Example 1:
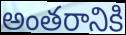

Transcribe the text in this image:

అంతరానికి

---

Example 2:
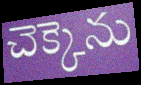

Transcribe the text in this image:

చెక్కెను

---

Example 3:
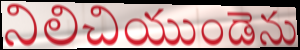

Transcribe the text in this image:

నిలిచియుండెను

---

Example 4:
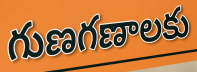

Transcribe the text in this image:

గుణగణాలకు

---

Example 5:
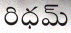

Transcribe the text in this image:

రిధమ్